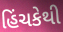
હિંચકેથી